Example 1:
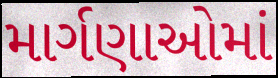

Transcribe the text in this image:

માર્ગણાઓમાં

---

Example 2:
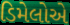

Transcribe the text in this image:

ડિમેલોએ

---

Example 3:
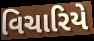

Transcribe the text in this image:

વિચારિયે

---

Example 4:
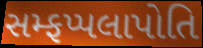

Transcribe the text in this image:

સમ્ફપ્પલાપોતિ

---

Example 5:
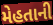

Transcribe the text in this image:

મેહતાની